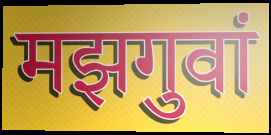
मझगुवां